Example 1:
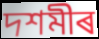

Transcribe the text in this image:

দশমীৰ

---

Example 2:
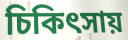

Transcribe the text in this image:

চিকিৎসায়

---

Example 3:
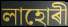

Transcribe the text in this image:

লাহোৰী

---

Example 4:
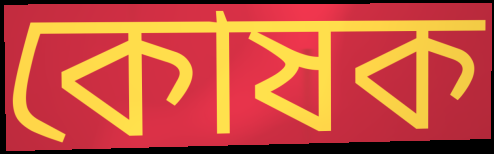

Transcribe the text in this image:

কোষক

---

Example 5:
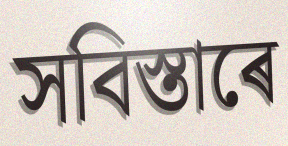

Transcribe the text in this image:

সবিস্তাৰে